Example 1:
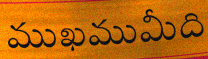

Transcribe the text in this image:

ముఖముమీది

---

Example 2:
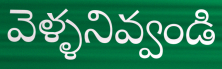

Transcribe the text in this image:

వెళ్ళనివ్వండి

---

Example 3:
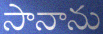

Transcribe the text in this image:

సానాను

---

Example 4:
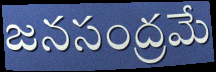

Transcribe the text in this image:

జనసంద్రమే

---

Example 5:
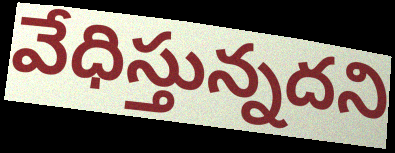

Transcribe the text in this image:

వేధిస్తున్నదని